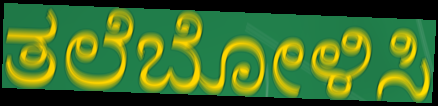
ತಲೆಬೋಳಿಸಿ